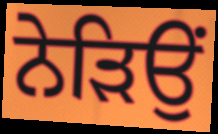
ਨੇੜਿਉਂ